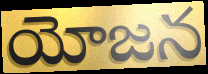
యోజన